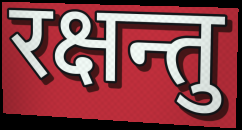
रक्षन्तु